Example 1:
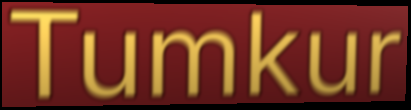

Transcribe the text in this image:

Tumkur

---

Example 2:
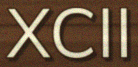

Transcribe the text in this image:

XCII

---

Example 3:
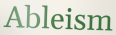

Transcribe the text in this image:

Ableism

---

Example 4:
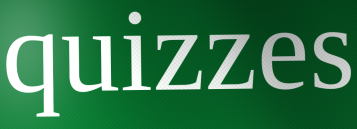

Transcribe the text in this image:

quizzes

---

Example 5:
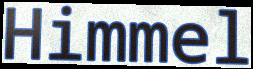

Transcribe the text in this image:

Himmel